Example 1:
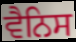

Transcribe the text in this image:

ਵੈਨਿਸ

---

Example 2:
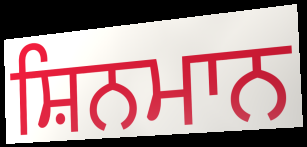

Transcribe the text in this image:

ਸ਼ਿਨਮਾਨ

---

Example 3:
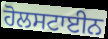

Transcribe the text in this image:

ਹੋਲਸਟਾਈਨ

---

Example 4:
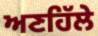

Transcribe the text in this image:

ਅਣਹਿੱਲੇ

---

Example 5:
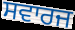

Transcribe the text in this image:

ਸਵਾਰਜ